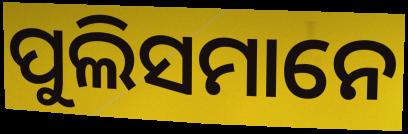
ପୁଲିସମାନେ